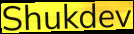
Shukdev